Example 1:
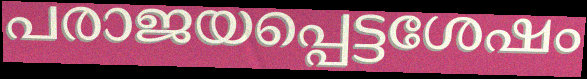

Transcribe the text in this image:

പരാജയപ്പെട്ടശേഷം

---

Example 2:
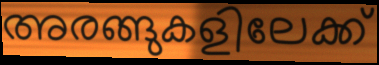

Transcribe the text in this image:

അരങ്ങുകളിലേക്ക്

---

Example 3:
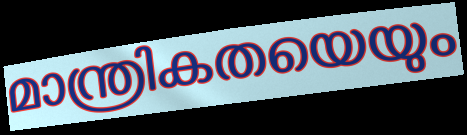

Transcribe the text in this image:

മാന്ത്രികതയെയും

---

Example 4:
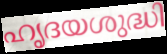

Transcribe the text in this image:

ഹൃദയശുദ്ധി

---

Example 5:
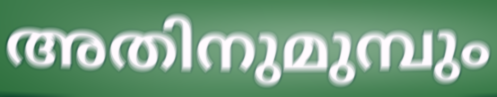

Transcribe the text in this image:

അതിനുമുമ്പും